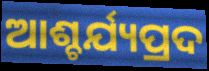
ଆଶ୍ଚର୍ଯ୍ୟପ୍ରଦ